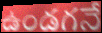
ఉండగనే